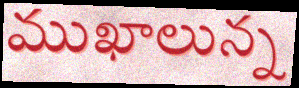
ముఖాలున్న